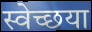
स्वेच्छया